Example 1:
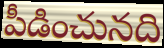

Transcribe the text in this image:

పీడించునది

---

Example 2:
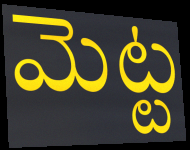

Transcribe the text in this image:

మెట్ట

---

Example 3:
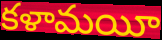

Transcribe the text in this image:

కళామయీ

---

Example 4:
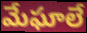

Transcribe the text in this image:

మేఘాలే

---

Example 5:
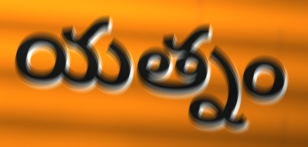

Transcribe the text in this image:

యత్నం